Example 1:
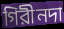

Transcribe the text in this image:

গিরীনদা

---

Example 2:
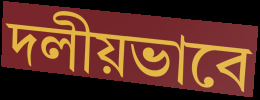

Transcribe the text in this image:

দলীয়ভাবে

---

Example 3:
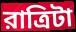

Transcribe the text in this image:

রাত্রিটা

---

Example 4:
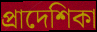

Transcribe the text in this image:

প্রাদেশিকা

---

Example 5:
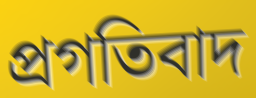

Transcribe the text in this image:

প্রগতিবাদ